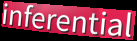
inferential